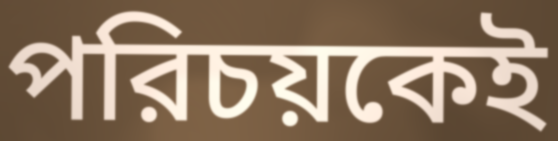
পরিচয়কেই